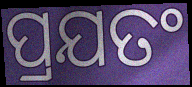
ପ୍ରଯତଂ